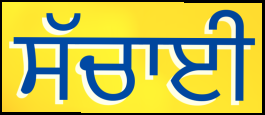
ਸੱਚਾਈ